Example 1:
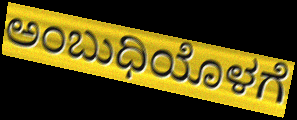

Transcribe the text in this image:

ಅಂಬುಧಿಯೊಳಗೆ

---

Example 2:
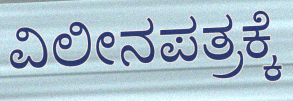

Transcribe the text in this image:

ವಿಲೀನಪತ್ರಕ್ಕೆ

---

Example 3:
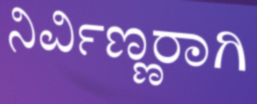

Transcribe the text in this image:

ನಿರ್ವಿಣ್ಣರಾಗಿ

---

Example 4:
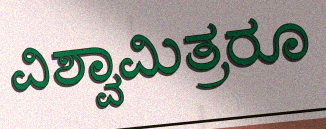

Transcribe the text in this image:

ವಿಶ್ವಾಮಿತ್ರರೂ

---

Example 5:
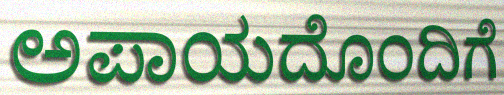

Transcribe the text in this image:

ಅಪಾಯದೊಂದಿಗೆ